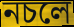
নচলে